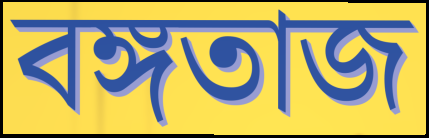
বঙ্গতাজ